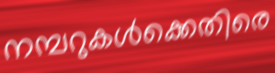
നമ്പറുകൾക്കെതിരെ